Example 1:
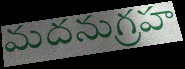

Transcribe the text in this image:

మదనుగ్రహ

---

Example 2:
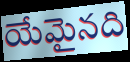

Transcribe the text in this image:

యేమైనది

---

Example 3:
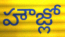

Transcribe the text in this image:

హౌజ్లో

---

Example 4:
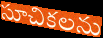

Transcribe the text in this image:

సూచికలను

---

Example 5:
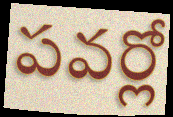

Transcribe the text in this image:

పవర్లో